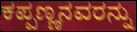
ಕಪ್ಪಣ್ಣನವರನ್ನು